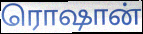
ரொஷான்